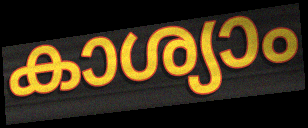
കാശ്യാം